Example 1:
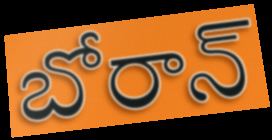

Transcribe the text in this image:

బోరాన్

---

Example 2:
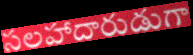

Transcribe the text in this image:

సలహాదారుడుగా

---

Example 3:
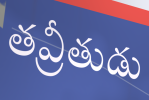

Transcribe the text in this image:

తవ్రీతుడు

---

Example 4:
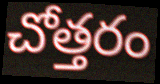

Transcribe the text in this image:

చోత్తరం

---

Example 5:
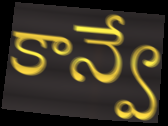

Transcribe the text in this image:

కాన్వే